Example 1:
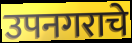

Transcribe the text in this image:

उपनगराचे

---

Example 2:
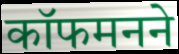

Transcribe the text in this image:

कॉफमनने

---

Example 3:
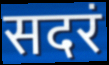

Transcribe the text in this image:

सदरं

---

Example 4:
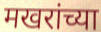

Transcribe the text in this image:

मखरांच्या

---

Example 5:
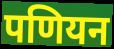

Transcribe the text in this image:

पणियन